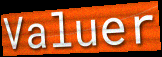
Valuer